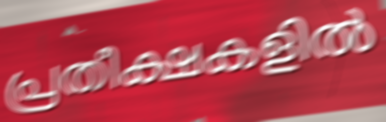
പ്രതീക്ഷകളിൽ